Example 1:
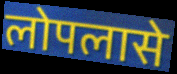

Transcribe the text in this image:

लोपलासे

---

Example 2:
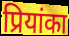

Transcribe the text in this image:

प्रियांका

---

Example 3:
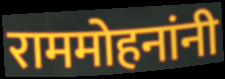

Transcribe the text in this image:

राममोहनांनी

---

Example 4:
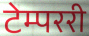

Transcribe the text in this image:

टेम्पररी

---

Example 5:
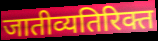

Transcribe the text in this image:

जातीव्यतिरिक्त